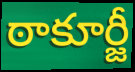
ఠాకూర్జీ